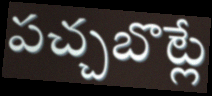
పచ్చబొట్లే